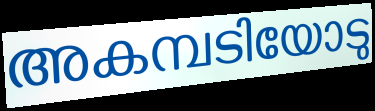
അകമ്പടിയോടു